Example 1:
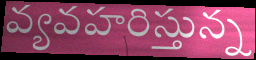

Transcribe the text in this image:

వ్యవహరిస్తున్న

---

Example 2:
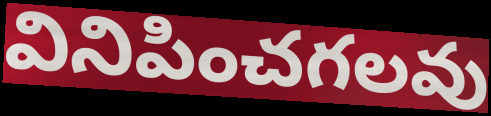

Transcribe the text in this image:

వినిపించగలవు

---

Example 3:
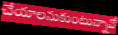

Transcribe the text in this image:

చేయాలనుకుంటున్నావో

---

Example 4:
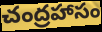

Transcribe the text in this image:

చంద్రహాసం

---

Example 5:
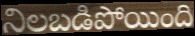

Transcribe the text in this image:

నిలబడిపోయింది